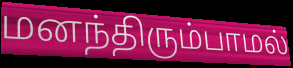
மனந்திரும்பாமல்